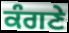
ਕੰਗਣੇ